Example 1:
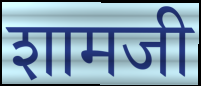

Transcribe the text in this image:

शामजी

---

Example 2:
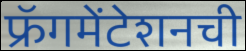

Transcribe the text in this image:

फ्रॅगमेंटेशनची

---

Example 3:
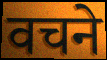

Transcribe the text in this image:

वचने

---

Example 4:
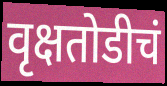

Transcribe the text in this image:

वृक्षतोडीचं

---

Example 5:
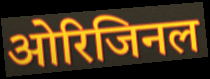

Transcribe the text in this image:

ओरिजिनल